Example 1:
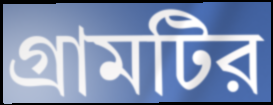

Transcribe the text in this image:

গ্রামটির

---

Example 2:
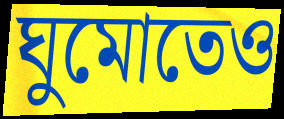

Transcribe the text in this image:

ঘুমোতেও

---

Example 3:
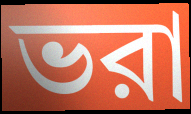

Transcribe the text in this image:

ভরা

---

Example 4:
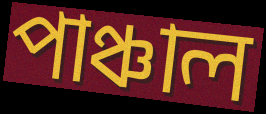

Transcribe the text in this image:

পাঞ্চাল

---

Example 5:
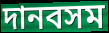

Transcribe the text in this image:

দানবসম